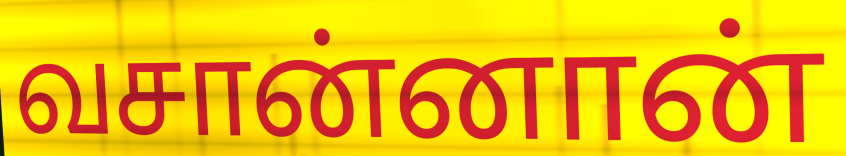
வசான்னான்